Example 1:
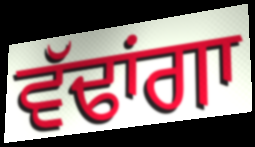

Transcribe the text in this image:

ਵੱਢਾਂਗਾ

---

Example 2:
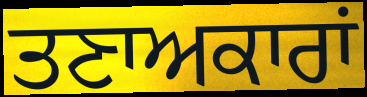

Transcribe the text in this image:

ਤਣਾਅਕਾਰਾਂ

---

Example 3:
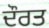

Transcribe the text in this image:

ਦੌਰਤ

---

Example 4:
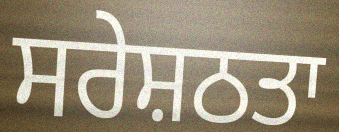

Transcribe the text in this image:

ਸਰੇਸ਼ਠਤਾ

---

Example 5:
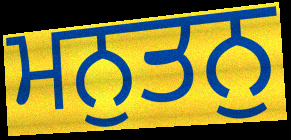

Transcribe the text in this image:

ਮਨੁਤਨੁ